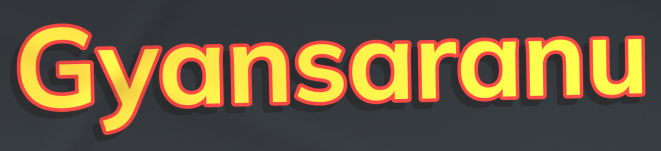
Gyansaranu